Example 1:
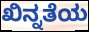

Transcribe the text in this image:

ಖಿನ್ನತೆಯ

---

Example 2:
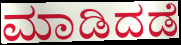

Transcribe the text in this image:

ಮಾಡಿದಡೆ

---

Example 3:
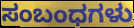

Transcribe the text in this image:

ಸಂಬಂಧಗಳು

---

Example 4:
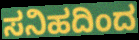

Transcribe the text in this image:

ಸನಿಹದಿಂದ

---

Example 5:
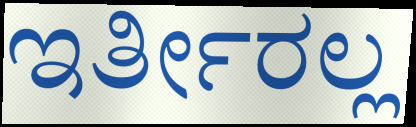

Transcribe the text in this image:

ಇರ್ತೀರಲ್ಲ